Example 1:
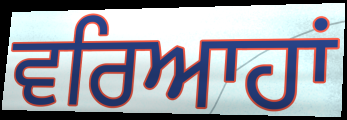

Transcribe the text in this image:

ਵਰਿਆਹਾਂ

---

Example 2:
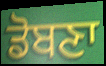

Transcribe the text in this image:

ਡੋਬਣਾ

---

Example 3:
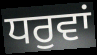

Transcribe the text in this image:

ਧਰੁਵਾਂ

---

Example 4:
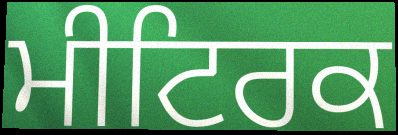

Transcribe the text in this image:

ਮੀਟਿਰਕ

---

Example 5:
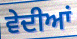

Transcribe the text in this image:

ਵੇਦੀਆਂ